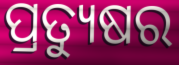
ପ୍ରତ୍ୟୁଷର